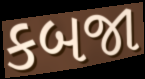
કબજા